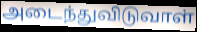
அடைந்துவிடுவாள்